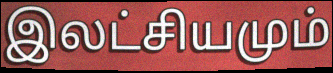
இலட்சியமும்